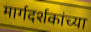
मार्गदर्शकांच्या